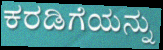
ಕರಡಿಗೆಯನ್ನು